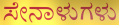
ಸೇನಾಳುಗಳು